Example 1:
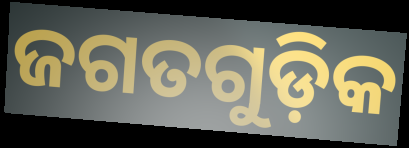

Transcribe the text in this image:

ଜଗତଗୁଡ଼ିକ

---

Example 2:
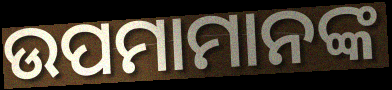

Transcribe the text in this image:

ଉପମାମାନଙ୍କ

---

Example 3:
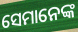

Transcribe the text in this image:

ସେମାନେଙ୍କ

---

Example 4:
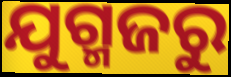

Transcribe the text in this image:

ଯୁଗ୍ମଜରୁ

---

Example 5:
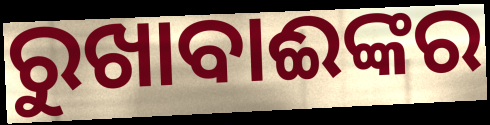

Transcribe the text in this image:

ରୁଖାବାଈଙ୍କର